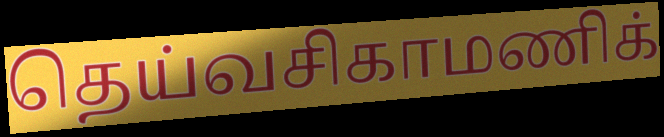
தெய்வசிகாமணிக்